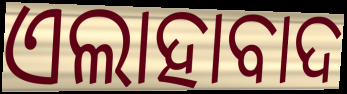
ଏଲାହାବାଦ